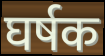
घर्षक